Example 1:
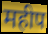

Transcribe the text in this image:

महीप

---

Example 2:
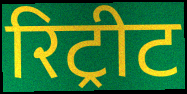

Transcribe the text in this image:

रिट्रीट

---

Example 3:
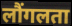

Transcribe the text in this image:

लौंगलता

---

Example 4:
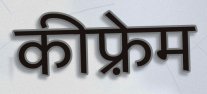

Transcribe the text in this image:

कीफ़्रेम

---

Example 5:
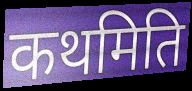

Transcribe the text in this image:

कथमिति